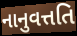
નાનુવત્તતિ